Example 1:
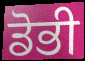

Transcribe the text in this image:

ਡੋਭੀ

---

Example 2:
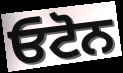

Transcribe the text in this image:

ਓਟੋਨ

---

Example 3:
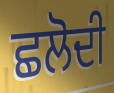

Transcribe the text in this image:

ਛਲੋਦੀ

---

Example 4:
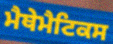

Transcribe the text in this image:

ਮੈਥੇਮੈਟਿਕਸ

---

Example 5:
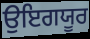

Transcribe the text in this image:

ਉਇਗਯੂਰ